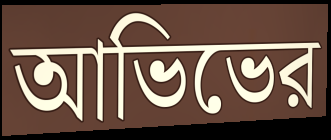
আভিভের